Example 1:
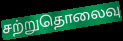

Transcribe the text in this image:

சற்றுதொலைவு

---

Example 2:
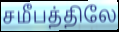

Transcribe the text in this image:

சமீபத்திலே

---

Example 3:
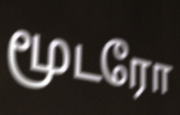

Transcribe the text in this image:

மூடரோ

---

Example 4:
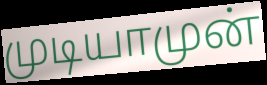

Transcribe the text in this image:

முடியாமுன்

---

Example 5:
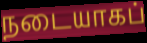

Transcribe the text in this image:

நடையாகப்